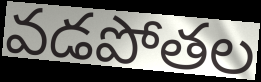
వడపోతల